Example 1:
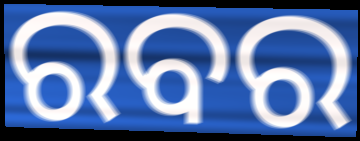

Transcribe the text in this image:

ରବର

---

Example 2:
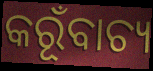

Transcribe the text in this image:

କରୂଁବାଚ୍ୟ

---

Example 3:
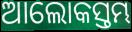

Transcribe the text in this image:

ଆଲୋକସ୍ତମ୍ଭ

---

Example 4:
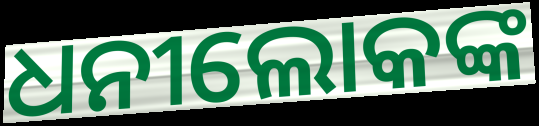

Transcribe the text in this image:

ଧନୀଲୋକଙ୍କ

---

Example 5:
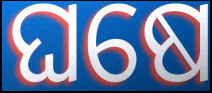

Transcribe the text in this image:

ଘଷେ